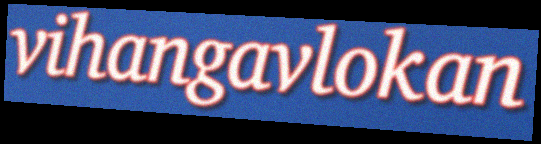
vihangavlokan